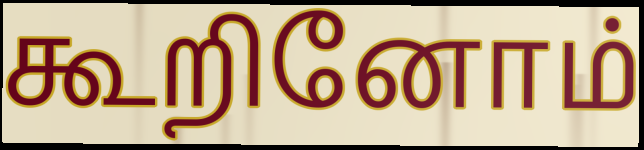
கூறினோம்